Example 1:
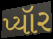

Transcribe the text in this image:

પ્યૉર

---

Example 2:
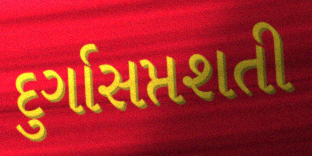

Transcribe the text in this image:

દુર્ગાસપ્તશતી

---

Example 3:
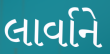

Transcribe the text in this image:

લાર્વાને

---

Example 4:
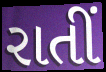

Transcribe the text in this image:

રાતીં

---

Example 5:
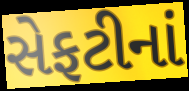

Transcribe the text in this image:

સેફટીનાં